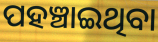
ପହଞ୍ଚାଇଥିବା